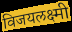
विजयलक्ष्मी